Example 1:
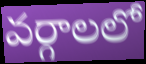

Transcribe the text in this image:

వర్గాలలో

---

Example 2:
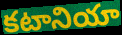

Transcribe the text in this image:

కటానియా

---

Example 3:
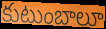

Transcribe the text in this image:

కుటుంబాలూ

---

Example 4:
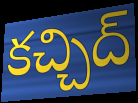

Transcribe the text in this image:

కచ్చిద్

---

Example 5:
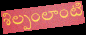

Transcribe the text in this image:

శిల్పంలాంటి